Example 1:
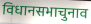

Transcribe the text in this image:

विधानसभाचुनाव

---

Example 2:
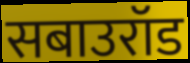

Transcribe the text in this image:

सबाउरॉड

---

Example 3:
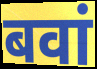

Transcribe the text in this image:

बवां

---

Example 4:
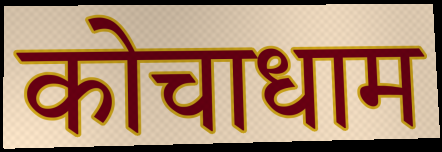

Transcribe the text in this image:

कोचाधाम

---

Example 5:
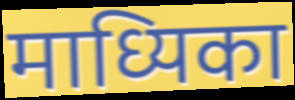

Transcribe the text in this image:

माध्यिका